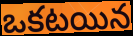
ఒకటయిన